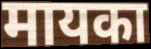
मायका